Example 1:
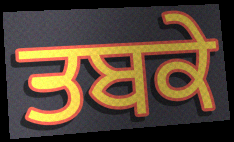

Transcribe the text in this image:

ਤਬਕੇ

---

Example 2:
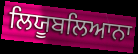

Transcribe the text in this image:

ਲਿਯੂਬਲਿਆਨਾ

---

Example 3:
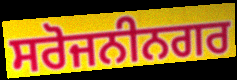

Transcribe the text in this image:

ਸਰੋਜਨੀਨਗਰ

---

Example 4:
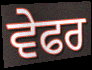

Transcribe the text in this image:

ਵੇਫਰ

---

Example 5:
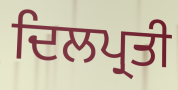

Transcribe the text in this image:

ਦਿਲਪ੍ਰਤੀ